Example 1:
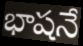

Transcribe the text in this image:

భాషనే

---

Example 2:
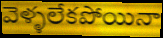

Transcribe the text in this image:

వెళ్ళలేకపోయినా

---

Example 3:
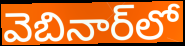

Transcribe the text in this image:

వెబినార్‌లో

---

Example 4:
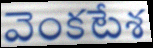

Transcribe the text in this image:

వెంకటేశ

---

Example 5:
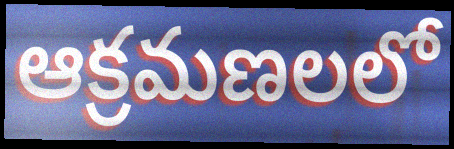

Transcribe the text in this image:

ఆక్రమణలలో